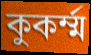
কুকর্ম্ম